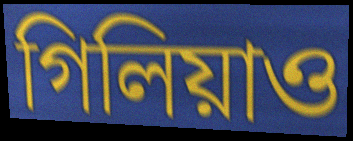
গিলিয়াও